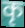
कृ